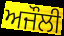
ਅਜੌਲੀ